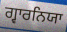
ਗ੍ਵਾਰਨਿਯਾ